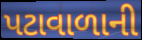
પટાવાળાની